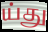
ய்து